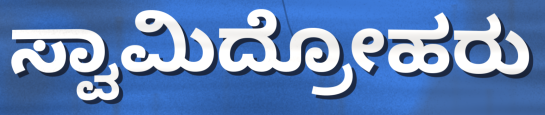
ಸ್ವಾಮಿದ್ರೋಹರು